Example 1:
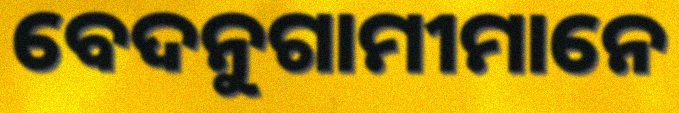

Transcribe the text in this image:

ବେଦନୁଗାମୀମାନେ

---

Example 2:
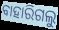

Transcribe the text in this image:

ବାହାରିଗଲୁ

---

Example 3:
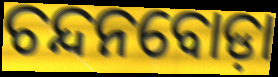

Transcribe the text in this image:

ଚନ୍ଦନବୋଡ଼ା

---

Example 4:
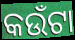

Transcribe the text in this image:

କଉଁଟା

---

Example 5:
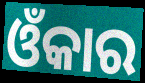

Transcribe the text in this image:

ଓଁକାର